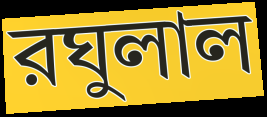
রঘুলাল